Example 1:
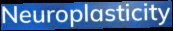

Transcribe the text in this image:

Neuroplasticity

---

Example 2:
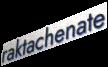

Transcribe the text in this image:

raktachenate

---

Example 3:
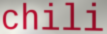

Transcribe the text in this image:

chili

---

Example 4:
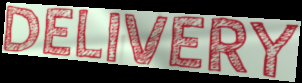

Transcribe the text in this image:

DELIVERY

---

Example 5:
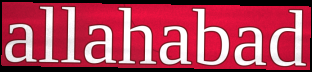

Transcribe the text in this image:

allahabad